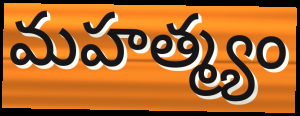
మహత్మ్యం